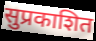
सुप्रकाशित